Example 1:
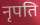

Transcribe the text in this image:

नृपति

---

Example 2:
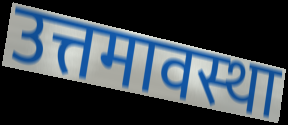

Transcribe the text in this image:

उत्तमावस्था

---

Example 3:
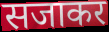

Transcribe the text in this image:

सजाकर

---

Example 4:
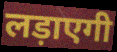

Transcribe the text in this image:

लड़ाएगी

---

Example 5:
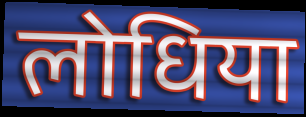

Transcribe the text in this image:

लोधिया